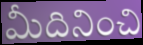
మీదినించి